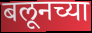
बलूनच्या